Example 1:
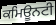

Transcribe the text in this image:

ਕਮਿਊਨਟੀ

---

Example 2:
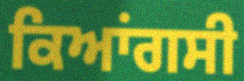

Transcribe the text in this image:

ਕਿਆਂਗਸੀ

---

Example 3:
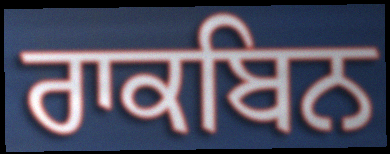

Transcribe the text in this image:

ਰਾਕਬਿਨ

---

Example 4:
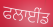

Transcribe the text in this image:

ਫਲਾਈਂਡ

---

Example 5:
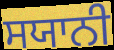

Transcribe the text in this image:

ਸਯਾਨੀ